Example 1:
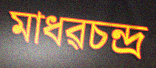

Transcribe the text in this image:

মাধৱচন্দ্ৰ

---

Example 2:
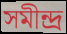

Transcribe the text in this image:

সমীন্দ্ৰ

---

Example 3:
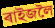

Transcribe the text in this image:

ৰাইজলৈ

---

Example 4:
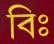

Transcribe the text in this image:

বিঃ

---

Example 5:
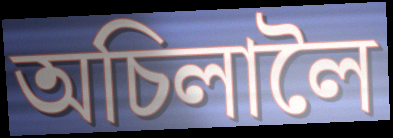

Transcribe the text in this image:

অচিলালৈ